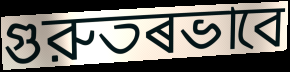
গুৰুতৰভাবে